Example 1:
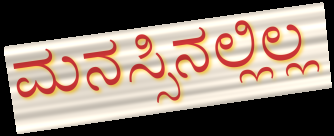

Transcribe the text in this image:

ಮನಸ್ಸಿನಲ್ಲಿಲ್ಲ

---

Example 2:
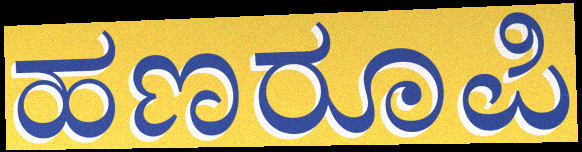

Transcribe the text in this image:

ಹಣರೂಪಿ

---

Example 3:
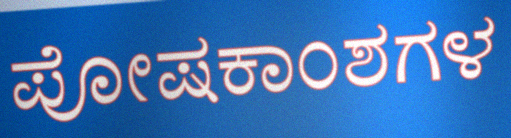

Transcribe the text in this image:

ಪೋಷಕಾಂಶಗಳ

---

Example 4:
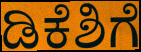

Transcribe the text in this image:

ಡಿಕೆಶಿಗೆ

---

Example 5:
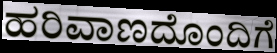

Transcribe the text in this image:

ಹರಿವಾಣದೊಂದಿಗೆ